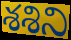
శశిని